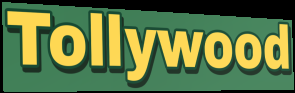
Tollywood